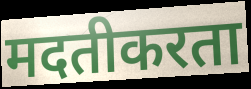
मदतीकरता